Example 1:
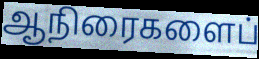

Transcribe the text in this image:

ஆநிரைகளைப்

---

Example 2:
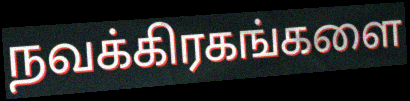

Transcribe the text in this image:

நவக்கிரகங்களை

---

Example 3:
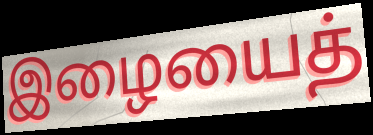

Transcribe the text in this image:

இழையைத்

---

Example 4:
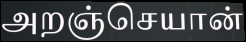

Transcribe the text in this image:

அறஞ்செயான்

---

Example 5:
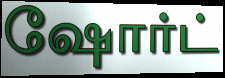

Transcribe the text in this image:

ஷோர்ட்